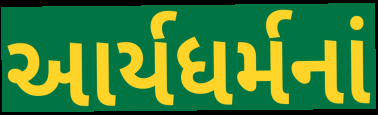
આર્યધર્મનાં